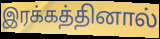
இரக்கத்தினால்